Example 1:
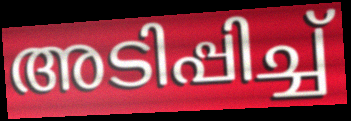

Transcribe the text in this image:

അടിപ്പിച്ച്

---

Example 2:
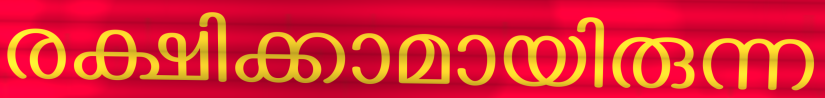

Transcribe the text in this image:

രക്ഷിക്കാമായിരുന്ന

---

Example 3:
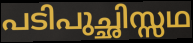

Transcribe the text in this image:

പടിപുച്ഛിസ്സഥ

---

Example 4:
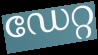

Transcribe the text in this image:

ഡേറ്റ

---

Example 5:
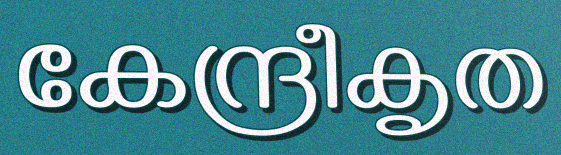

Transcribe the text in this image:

കേന്ദ്രീകൃത